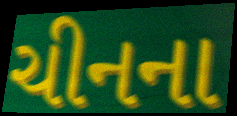
ચીનના